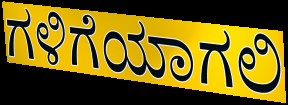
ಗಳಿಗೆಯಾಗಲಿ